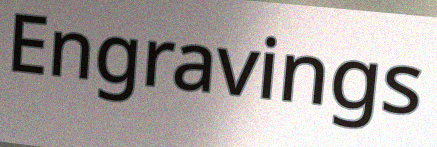
Engravings